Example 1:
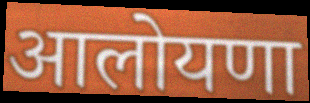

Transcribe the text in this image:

आलोयणा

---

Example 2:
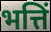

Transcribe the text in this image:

भत्तिं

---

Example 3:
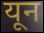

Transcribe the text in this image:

यून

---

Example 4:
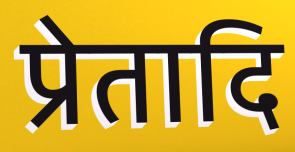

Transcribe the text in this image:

प्रेतादि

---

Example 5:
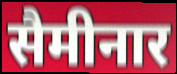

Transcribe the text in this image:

सैमीनार